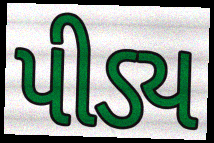
પીડ્ય